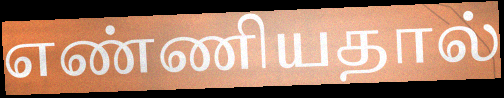
எண்ணியதால்